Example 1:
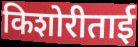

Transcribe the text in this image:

किशोरीताई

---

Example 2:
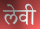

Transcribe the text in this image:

लेवी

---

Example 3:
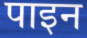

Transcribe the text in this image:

पाइन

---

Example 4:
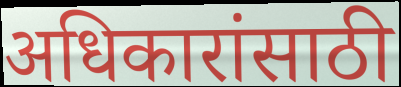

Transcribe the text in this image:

अधिकारांसाठी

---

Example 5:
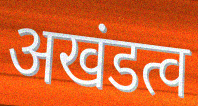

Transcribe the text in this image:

अखंडत्व